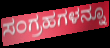
ಸಂಗ್ರಹಗಳನ್ನೂ